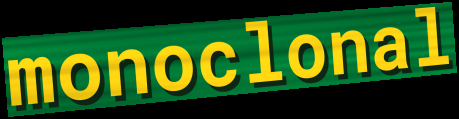
monoclonal